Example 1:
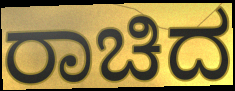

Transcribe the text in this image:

ರಾಚಿದ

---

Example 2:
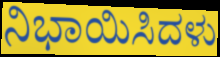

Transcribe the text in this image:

ನಿಭಾಯಿಸಿದಳು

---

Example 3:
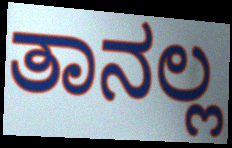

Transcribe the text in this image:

ತಾನಲ್ಲ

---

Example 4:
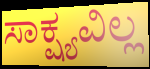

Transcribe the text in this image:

ಸಾಕ್ಷ್ಯವಿಲ್ಲ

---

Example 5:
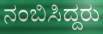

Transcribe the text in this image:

ನಂಬಿಸಿದ್ದರು